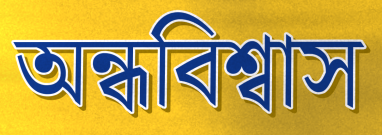
অন্ধবিশ্বাস